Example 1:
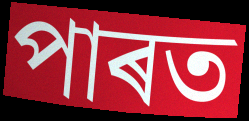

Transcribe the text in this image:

পাৰত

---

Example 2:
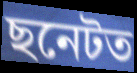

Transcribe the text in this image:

ছনেটত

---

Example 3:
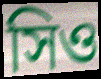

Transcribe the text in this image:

সিও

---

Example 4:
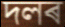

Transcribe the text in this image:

দলৰ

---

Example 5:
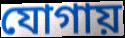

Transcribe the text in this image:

যোগায়